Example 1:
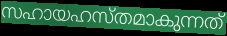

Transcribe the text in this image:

സഹായഹസ്തമാകുന്നത്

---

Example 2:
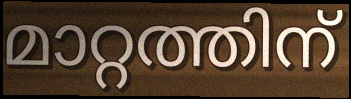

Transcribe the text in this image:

മാറ്റത്തിന്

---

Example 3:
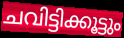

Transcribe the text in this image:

ചവിട്ടിക്കൂട്ടും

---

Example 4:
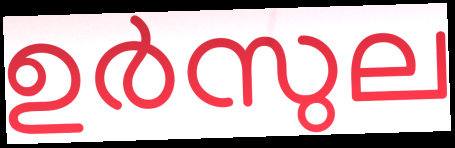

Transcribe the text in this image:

ഉർസുല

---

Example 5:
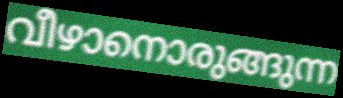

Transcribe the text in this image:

വീഴാനൊരുങ്ങുന്ന